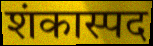
शंकास्पद